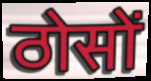
ठोसों